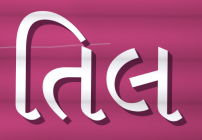
તિલ